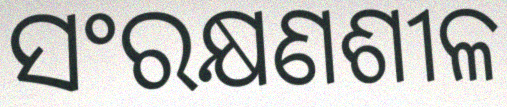
ସଂରକ୍ଷଣଶୀଳ